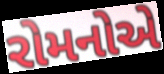
રોમનોએ